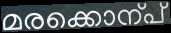
മരക്കൊന്പ്